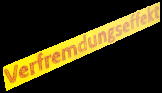
Verfremdungseffekt